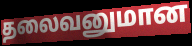
தலைவனுமான